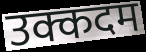
उक्कदम